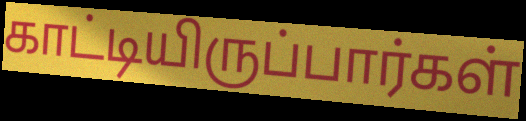
காட்டியிருப்பார்கள்